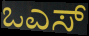
ಒಎಸ್